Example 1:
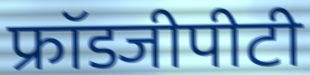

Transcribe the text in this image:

फ्रॉडजीपीटी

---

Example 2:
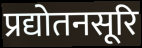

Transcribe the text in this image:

प्रद्योतनसूरि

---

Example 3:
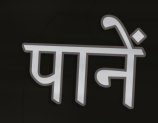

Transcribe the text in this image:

पानें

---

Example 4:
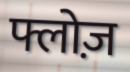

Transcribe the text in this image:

फ्लोज़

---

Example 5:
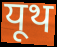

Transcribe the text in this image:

यूथ